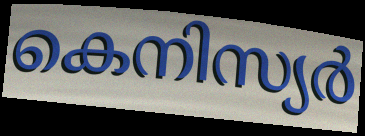
കെനിസ്യർ